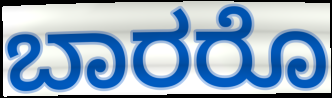
ಬಾರರೊ